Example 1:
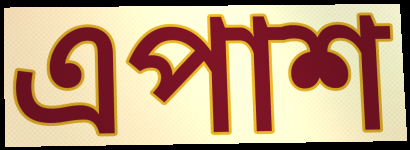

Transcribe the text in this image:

এপাশ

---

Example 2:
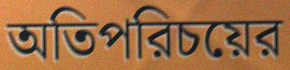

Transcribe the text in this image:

অতিপরিচয়ের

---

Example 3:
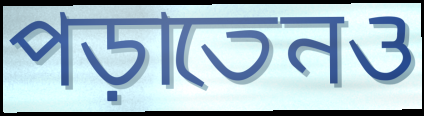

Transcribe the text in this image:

পড়াতেনও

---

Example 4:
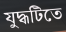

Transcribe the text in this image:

যুদ্ধটিতে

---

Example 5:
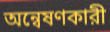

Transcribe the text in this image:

অন্বেষণকারী